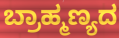
ಬ್ರಾಹ್ಮಣ್ಯದ